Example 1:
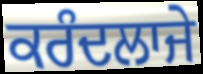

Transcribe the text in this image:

ਕਰੰਦਲਾਜੇ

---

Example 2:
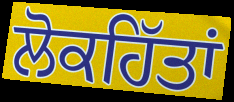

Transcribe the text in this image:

ਲੋਕਹਿੱਤਾਂ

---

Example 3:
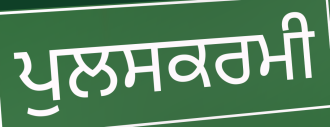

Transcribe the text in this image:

ਪੁਲਸਕਰਮੀ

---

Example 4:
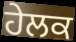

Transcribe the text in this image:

ਹੇਲਕ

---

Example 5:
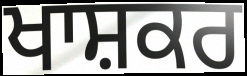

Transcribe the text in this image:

ਖਾਸ਼ਕਰ